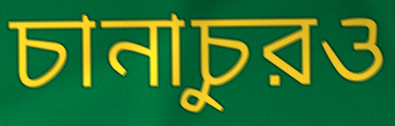
চানাচুরও